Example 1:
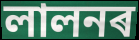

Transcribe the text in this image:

লালনৰ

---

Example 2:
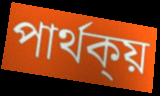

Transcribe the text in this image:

পাৰ্থক্য়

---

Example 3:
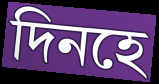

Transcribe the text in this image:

দিনহে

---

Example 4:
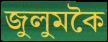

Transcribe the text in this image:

জুলুমকৈ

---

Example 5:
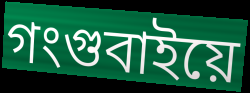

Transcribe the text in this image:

গংগুবাইয়ে